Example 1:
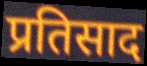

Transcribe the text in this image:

प्रतिसाद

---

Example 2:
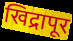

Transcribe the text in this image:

खिद्रापूर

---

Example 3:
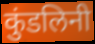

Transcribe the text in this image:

कुंडलिनी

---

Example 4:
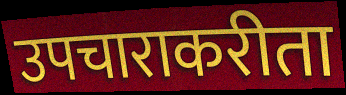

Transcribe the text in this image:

उपचाराकरीता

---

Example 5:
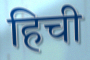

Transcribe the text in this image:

हिची